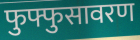
फुफ्फुसावरण